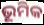
ଭୂମିକ